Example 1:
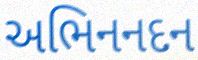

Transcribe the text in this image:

અભિનનદન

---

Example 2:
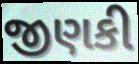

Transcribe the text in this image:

જીણકી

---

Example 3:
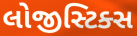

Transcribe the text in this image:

લોજીસ્ટિક્સ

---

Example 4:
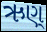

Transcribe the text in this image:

ઋણ્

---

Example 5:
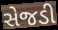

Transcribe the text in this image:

સેજડી